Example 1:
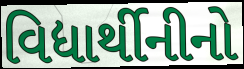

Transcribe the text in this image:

વિદ્યાર્થીનીનો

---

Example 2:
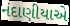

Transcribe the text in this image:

નંદાણીયાએ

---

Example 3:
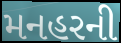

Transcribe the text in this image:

મનહરની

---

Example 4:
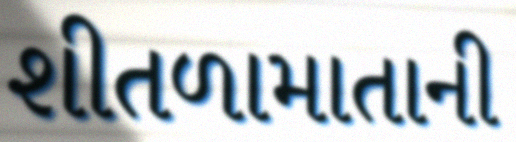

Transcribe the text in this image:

શીતળામાતાની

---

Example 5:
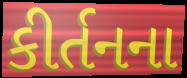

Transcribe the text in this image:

કીર્તનના